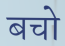
बचो